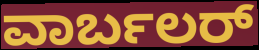
ವಾರ್ಬಲರ್